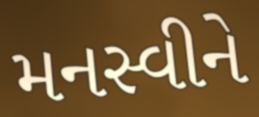
મનસ્વીને